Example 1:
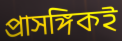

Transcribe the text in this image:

প্রাসঙ্গিকই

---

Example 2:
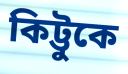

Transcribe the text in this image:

কিট্টুকে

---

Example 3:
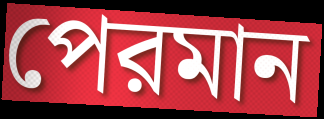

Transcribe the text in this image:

পেরমান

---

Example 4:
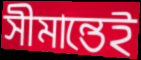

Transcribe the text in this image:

সীমান্তেই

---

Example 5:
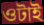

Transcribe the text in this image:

ওটাই